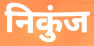
निकुंज